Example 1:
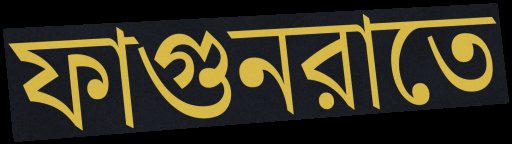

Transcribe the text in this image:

ফাগুনরাতে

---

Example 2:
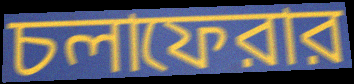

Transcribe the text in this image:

চলাফেরার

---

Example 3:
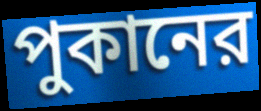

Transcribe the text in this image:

পুকানের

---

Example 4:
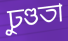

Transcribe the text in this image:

ঢুণ্ডতা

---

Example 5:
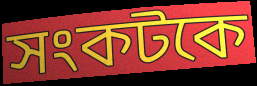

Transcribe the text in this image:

সংকটকে